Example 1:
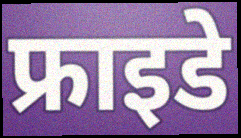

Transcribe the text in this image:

फ्राइडे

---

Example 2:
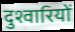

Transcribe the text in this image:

दुश्वारियों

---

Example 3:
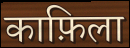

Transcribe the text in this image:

काफ़िला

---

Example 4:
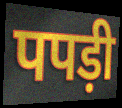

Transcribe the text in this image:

पपड़ी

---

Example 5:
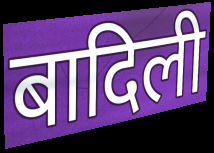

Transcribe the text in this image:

बादिली